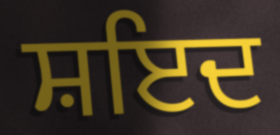
ਸ਼ਇਦ